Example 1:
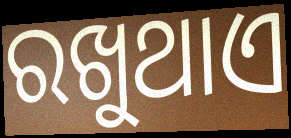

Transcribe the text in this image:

ରଖୁଥାଏ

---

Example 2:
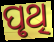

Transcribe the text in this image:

ପୃଥି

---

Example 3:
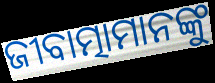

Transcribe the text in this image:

ଜୀବାତ୍ମାମାନଙ୍କୁ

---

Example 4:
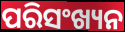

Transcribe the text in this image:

ପରିସଂଖ୍ୟନ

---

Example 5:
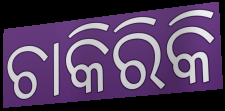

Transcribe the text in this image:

ଚାକିରିକି